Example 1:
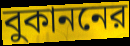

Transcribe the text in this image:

বুকাননের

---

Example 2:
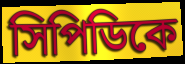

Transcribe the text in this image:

সিপিডিকে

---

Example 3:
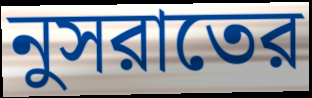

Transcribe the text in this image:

নুসরাতের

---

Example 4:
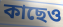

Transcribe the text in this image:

কাছেও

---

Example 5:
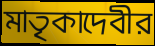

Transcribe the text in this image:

মাতৃকাদেবীর